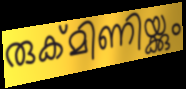
രുക്മിണിയ്ക്കും